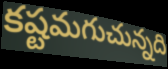
కష్టమగుచున్నది